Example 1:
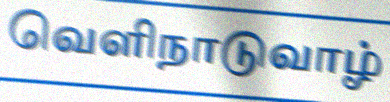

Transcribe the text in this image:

வெளிநாடுவாழ்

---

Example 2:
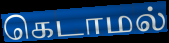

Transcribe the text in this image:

கெடாமல்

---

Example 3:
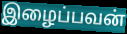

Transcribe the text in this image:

இழைப்பவன்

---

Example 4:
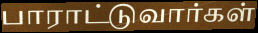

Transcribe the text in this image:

பாராட்டுவார்கள்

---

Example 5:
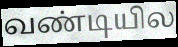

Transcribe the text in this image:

வண்டியில